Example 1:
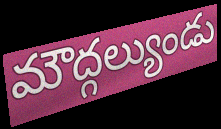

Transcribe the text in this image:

మౌద్గల్యుండు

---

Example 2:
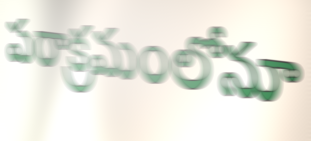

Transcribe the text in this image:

పరాక్రమంలోనూ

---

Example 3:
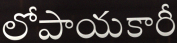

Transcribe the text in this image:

లోపాయకారీ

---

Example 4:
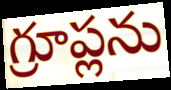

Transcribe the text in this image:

గ్రూప్లను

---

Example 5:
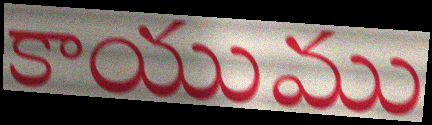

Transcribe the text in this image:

కాయుము